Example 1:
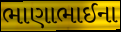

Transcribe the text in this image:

ભાણાભાઈના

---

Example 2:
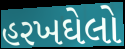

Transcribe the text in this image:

હરખઘેલો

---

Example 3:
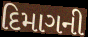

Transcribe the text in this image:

દિમાગની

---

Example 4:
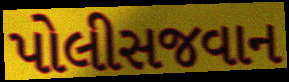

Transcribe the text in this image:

પોલીસજવાન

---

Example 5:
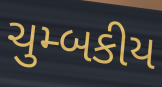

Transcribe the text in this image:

ચુમ્બકીય